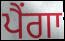
ਪੈਂਗਾ